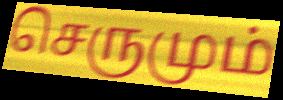
செருமும்